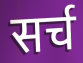
सर्च